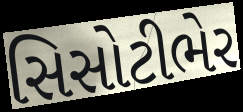
સિસોટીભેર